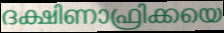
ദക്ഷിണാഫ്രിക്കയെ